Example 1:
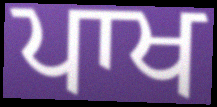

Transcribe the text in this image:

ਪਾਖ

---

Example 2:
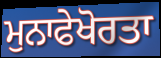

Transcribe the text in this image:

ਮੁਨਾਫੇਖੋਰਤਾ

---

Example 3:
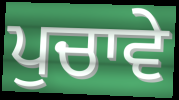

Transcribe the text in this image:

ਪੁਚਾਵੇ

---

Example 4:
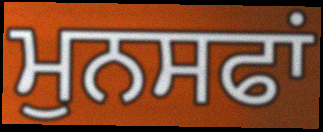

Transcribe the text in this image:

ਮੁਨਸਫਾਂ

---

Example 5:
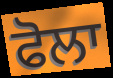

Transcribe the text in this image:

ਫੋਲਾ